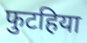
फुटहिया